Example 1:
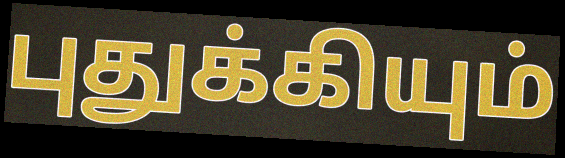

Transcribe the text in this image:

புதுக்கியும்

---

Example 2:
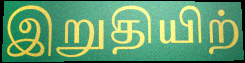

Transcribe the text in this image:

இறுதியிற்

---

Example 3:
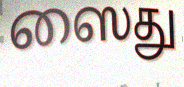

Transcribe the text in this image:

ஸைது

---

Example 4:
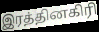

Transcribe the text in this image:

இரத்தினகிரி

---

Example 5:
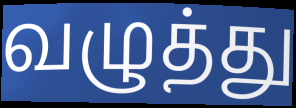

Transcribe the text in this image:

வழுத்து